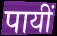
पायीं